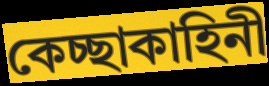
কেচ্ছাকাহিনী